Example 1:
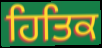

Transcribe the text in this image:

ਹਿਤਿਕ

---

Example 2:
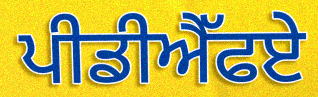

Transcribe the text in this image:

ਪੀਡੀਐੱਫਏ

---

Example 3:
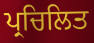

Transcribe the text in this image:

ਪ੍ਰਚਿਲਿਤ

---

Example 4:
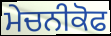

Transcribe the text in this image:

ਮੇਚਨੀਕੋਫ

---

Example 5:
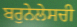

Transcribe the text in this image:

ਬਰੁਨੇਲੇਸਚੀ